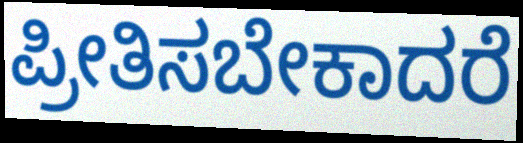
ಪ್ರೀತಿಸಬೇಕಾದರೆ